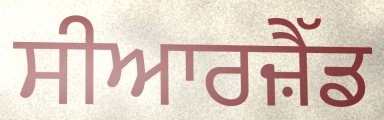
ਸੀਆਰਜ਼ੈੱਡ